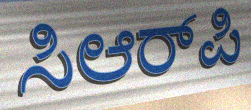
ಸಿಆರ್‌ಪಿ